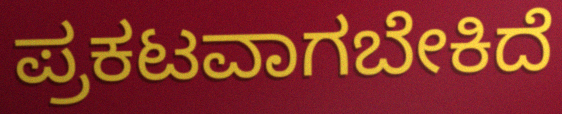
ಪ್ರಕಟವಾಗಬೇಕಿದೆ